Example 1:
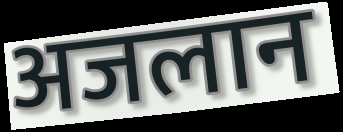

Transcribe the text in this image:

अजलान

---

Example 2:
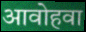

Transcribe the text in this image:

आवोहवा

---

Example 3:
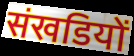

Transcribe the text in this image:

संखडियों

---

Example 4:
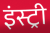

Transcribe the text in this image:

इंस्ट्री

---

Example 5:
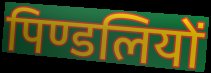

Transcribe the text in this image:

पिण्डलियों